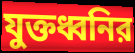
যুক্তধ্বনির